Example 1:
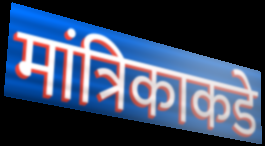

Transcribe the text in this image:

मांत्रिकाकडे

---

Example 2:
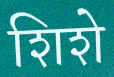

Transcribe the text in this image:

शिशे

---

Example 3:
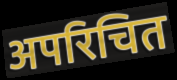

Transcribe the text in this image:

अपरिचित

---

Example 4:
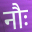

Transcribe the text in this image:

नौः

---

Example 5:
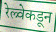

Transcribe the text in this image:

रेल्वेकडून